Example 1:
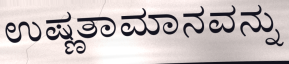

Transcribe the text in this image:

ಉಷ್ಣತಾಮಾನವನ್ನು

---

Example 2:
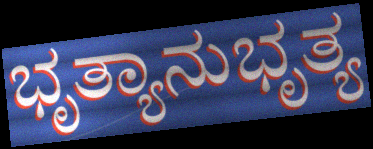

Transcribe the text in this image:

ಭೃತ್ಯಾನುಭೃತ್ಯ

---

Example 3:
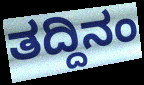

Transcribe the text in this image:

ತದ್ದಿನಂ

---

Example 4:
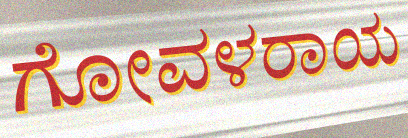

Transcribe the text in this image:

ಗೋವಳರಾಯ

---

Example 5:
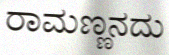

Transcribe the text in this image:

ರಾಮಣ್ಣನದು